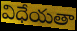
విధేయతా